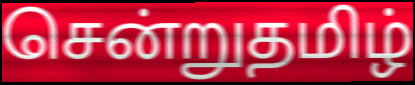
சென்றுதமிழ்